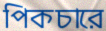
পিকচারে